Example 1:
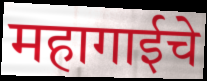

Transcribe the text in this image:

महागाईचे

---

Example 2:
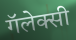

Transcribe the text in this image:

गॅलेक्सी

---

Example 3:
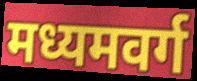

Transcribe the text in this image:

मध्यमवर्ग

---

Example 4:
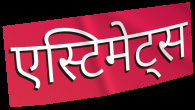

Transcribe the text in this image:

एस्टिमेट्स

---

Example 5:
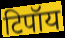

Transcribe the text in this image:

टिपॉय